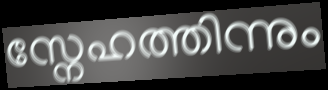
സ്നേഹത്തിന്നും